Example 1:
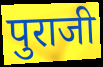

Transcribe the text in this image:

पुराजी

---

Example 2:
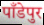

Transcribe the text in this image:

पाँडेपुर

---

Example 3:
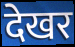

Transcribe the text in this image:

देखर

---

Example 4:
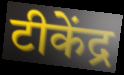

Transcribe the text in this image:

टीकेंद्र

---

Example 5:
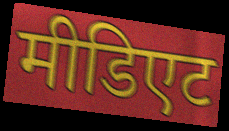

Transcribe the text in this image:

मीडिएट